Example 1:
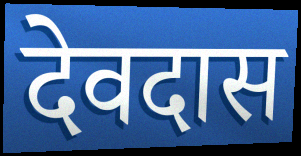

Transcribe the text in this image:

देवदास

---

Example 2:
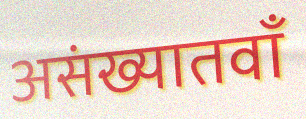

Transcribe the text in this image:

असंख्यातवाँ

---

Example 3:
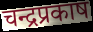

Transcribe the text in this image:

चन्द्रप्रकाष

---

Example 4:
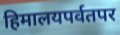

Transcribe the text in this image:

हिमालयपर्वतपर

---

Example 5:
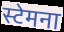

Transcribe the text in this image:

स्टेमना